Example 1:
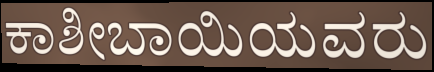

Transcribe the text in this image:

ಕಾಶೀಬಾಯಿಯವರು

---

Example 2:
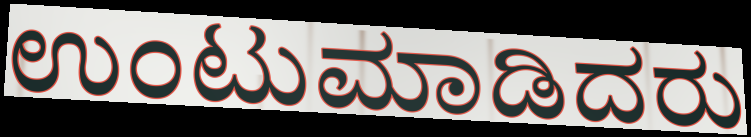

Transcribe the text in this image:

ಉಂಟುಮಾಡಿದರು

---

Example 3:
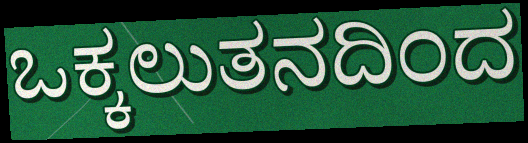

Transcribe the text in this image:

ಒಕ್ಕಲುತನದಿಂದ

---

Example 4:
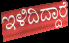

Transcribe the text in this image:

ಇಳಿದಿದ್ದಾರೆ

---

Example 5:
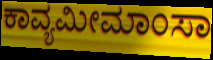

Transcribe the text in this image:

ಕಾವ್ಯಮೀಮಾಂಸಾ